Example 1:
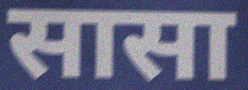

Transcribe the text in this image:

सासा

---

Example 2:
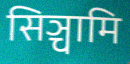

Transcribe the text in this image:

सिञ्चामि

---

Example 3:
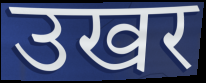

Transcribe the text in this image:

उखर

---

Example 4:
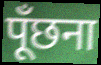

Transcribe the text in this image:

पूँछना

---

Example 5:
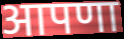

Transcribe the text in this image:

आपणा